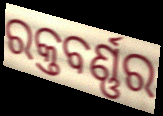
ରକ୍ତବର୍ଣ୍ଣର